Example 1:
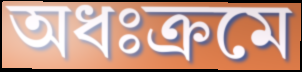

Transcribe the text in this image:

অধঃক্রমে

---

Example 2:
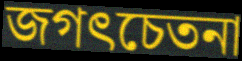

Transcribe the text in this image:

জগৎচেতনা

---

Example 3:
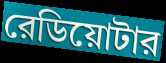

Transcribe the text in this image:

রেডিয়োটার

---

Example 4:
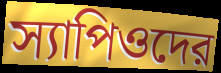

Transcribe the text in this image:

স্যাপিওদের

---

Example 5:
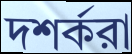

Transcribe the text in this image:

দশর্করা